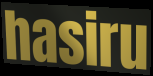
hasiru